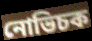
নোভিচক